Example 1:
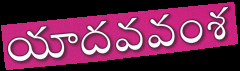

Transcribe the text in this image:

యాదవవంశ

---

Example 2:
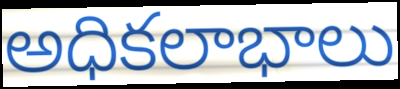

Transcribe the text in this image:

అధికలాభాలు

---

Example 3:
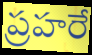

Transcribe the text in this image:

ప్రహరే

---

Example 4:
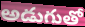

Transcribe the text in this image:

అడుగుతో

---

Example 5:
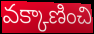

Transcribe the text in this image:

వక్కాణించి